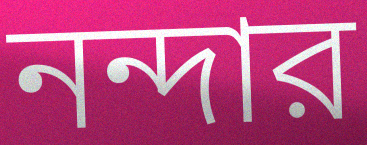
নন্দার